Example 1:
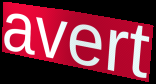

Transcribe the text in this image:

avert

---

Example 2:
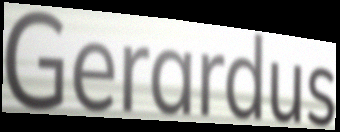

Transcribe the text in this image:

Gerardus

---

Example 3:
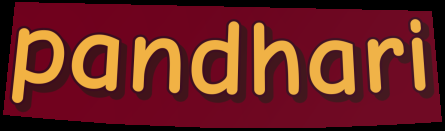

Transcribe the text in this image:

pandhari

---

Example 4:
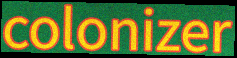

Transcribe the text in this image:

colonizer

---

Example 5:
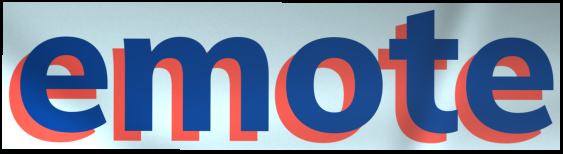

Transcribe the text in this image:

emote